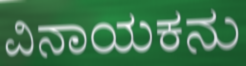
ವಿನಾಯಕನು